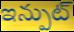
ఇన్పుట్